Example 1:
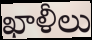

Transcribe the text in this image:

ఖాళీలు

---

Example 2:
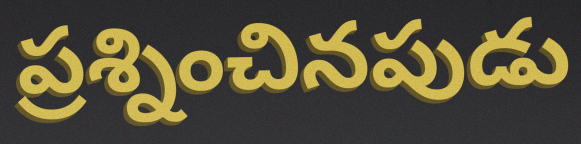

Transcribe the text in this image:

ప్రశ్నించినపుడు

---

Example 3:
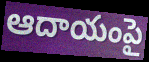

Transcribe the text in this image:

ఆదాయంపై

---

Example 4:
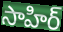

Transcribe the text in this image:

సాహిర్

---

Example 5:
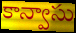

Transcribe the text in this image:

కాన్వాసు